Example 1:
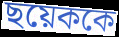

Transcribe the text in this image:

ছয়েককে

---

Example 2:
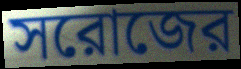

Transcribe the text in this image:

সরোজের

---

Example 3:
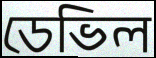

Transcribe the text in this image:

ডেভিল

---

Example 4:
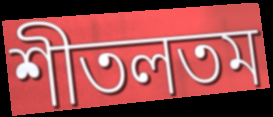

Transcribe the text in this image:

শীতলতম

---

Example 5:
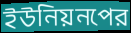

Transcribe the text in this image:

ইউনিয়নপের